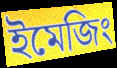
ইমেজিং